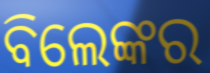
ବିଲେଙ୍କର